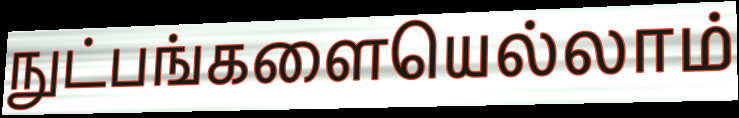
நுட்பங்களையெல்லாம்